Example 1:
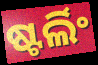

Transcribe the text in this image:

ଷ୍ଟର୍ଲିଂ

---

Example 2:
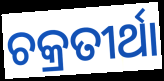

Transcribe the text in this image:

ଚକ୍ରତୀର୍ଥା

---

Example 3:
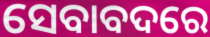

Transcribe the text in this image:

ସେବାବଦରେ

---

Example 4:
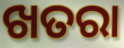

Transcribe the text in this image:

ଖତରା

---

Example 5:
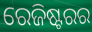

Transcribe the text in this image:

ରେଜିଷ୍ଟରର